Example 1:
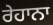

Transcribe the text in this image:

ਰੇਹਾਨਾ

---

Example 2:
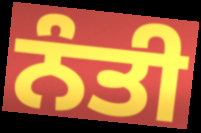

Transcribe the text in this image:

ਨੰਤੀ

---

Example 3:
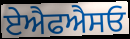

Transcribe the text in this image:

ਏਐਫਐਸਓ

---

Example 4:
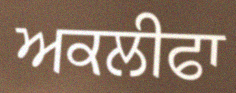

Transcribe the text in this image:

ਅਕਲੀਫਾ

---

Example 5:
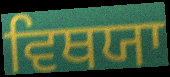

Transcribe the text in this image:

ਵਿਥਯਾ